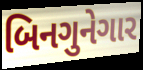
બિનગુનેગાર